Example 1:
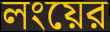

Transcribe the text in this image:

লংয়ের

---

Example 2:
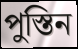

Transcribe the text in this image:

পুস্তিন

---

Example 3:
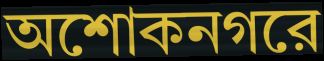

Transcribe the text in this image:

অশোকনগরে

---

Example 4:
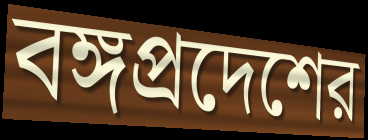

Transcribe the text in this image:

বঙ্গপ্রদেশের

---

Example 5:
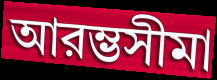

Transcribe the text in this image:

আরম্ভসীমা